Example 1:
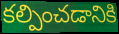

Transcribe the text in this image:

కల్పించడానికి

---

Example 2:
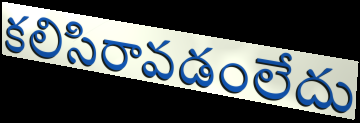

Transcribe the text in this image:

కలిసిరావడంలేదు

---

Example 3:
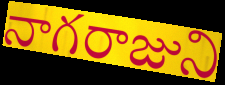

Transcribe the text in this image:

నాగరాజుని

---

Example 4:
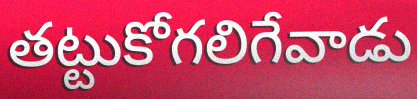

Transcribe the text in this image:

తట్టుకోగలిగేవాడు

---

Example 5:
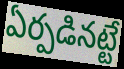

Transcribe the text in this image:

ఏర్పడినట్టే